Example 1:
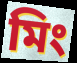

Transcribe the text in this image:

মিং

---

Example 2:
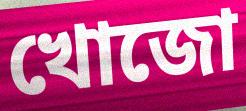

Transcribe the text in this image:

খোজো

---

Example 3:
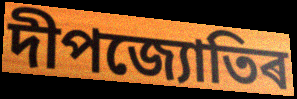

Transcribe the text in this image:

দীপজ্যোতিৰ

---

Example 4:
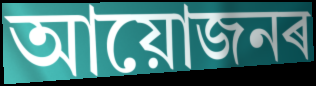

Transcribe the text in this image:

আয়োজনৰ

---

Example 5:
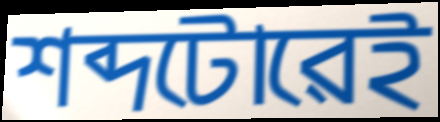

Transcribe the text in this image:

শব্দটোৱেই